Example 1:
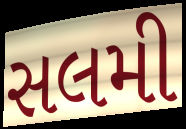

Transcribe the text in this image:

સલમી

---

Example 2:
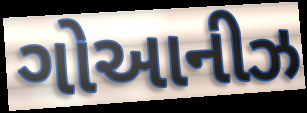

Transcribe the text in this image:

ગોઆનીઝ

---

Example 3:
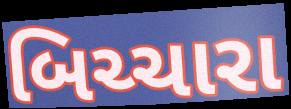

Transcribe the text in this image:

બિચ્ચારા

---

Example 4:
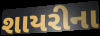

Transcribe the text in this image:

શાયરીના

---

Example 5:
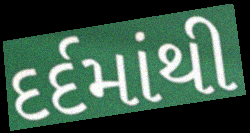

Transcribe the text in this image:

દર્દમાંથી